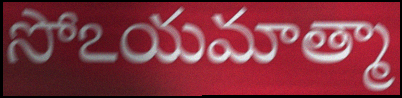
సోఽయమాత్మా